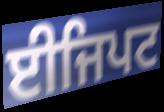
ਈਜਿਪਟ